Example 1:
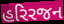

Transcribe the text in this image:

હરિરજન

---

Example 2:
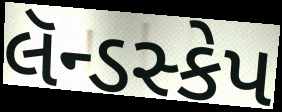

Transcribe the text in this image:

લૅન્ડસ્કેપ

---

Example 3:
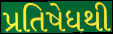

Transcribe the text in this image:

પ્રતિષેધથી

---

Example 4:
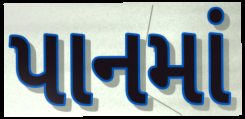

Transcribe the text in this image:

પાનમાં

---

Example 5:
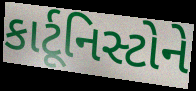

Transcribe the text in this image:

કાર્ટૂનિસ્ટોને